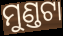
ମୁଣ୍ଡଟା